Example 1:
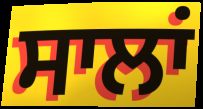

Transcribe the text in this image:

ਸਾਲਾਂ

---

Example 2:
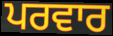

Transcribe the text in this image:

ਪਰਵਾਰ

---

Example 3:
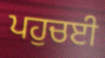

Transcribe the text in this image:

ਪਹੁਚਈ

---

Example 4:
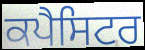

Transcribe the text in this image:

ਕਪੈਸਿਟਰ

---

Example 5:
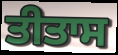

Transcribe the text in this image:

ਤੀਤਾਸ